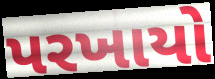
પરખાયો